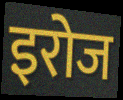
इरोज